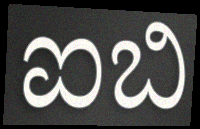
ಐಬಿ